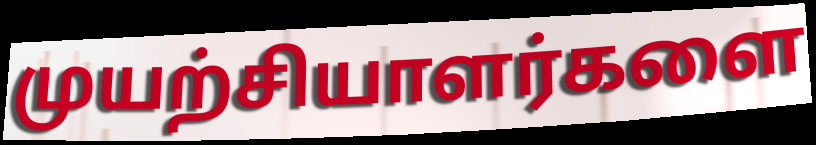
முயற்சியாளர்களை